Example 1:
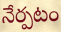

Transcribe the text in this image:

నేర్పటం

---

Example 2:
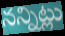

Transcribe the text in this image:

నన్నిట్లు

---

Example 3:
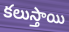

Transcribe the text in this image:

కలుస్తాయి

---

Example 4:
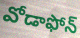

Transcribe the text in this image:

వోడాఫోన్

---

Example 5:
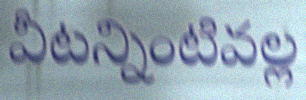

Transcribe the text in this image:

వీటన్నింటివల్ల